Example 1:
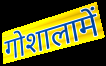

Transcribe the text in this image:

गोशालामें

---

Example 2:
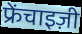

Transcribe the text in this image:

फ्रेंचाइज़ी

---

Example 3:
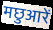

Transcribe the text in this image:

मछुआरें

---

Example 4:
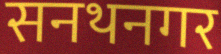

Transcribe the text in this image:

सनथनगर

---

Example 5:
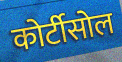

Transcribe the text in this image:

कोर्टीसोल